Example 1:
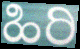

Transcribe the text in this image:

ಹಿರಿ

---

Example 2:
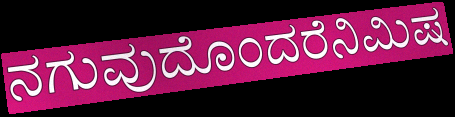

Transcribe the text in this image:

ನಗುವುದೊಂದರೆನಿಮಿಷ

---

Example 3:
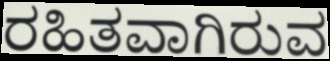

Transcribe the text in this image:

ರಹಿತವಾಗಿರುವ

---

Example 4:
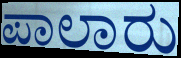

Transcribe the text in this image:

ಪಾಲಾರು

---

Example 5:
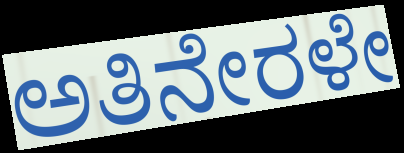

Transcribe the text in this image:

ಅತಿನೇರಳೇ